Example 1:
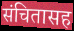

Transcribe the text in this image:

संचितासह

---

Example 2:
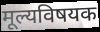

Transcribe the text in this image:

मूल्यविषयक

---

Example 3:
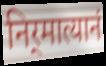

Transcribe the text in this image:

निर्मात्यानं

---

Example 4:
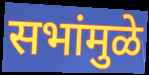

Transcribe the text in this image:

सभांमुळे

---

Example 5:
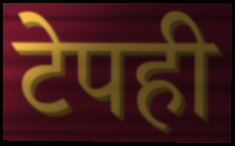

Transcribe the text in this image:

टेपही